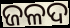
ଜଳଦ